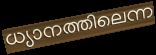
ധ്യാനത്തിലെന്ന